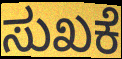
ಸುಖಕೆ